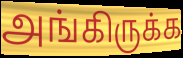
அங்கிருக்க